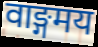
वाङ्गमय